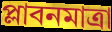
প্লাবনমাত্রা